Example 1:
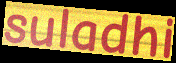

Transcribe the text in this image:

suladhi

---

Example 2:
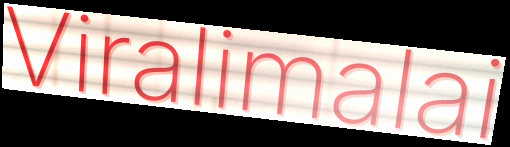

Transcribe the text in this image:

Viralimalai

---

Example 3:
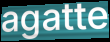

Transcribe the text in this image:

agatte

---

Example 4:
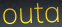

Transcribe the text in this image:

outa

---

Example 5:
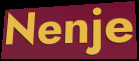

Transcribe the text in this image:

Nenje